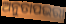
ଅନୁତାପଭରା